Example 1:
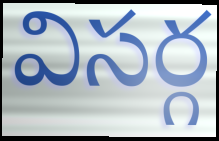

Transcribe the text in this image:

విసర్గ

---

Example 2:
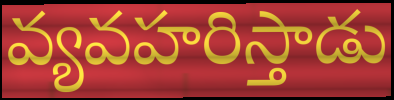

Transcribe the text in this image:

వ్యవహరిస్తాడు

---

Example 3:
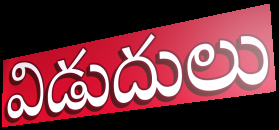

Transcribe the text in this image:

విడుదులు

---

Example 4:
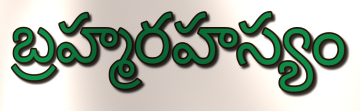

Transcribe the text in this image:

బ్రహ్మరహస్యం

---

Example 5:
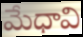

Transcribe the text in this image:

మేధావి